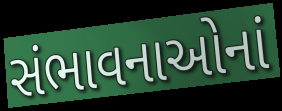
સંભાવનાઓનાં